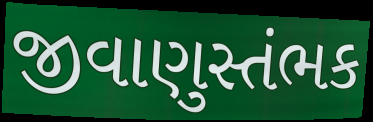
જીવાણુસ્તંભક